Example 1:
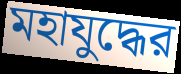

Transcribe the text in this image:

মহাযুদ্ধের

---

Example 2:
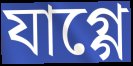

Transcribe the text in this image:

যাগ্গে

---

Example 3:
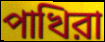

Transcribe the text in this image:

পাখিরা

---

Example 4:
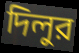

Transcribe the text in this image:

দিলুর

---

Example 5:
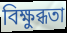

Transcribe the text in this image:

বিক্ষুব্ধতা